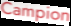
Campion